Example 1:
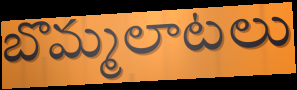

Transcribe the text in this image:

బొమ్మలాటలు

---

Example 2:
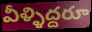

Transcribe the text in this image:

వీళ్ళిద్దరూ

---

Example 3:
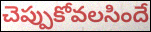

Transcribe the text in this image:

చెప్పుకోవలసిందే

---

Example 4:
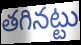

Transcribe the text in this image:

తగినట్టు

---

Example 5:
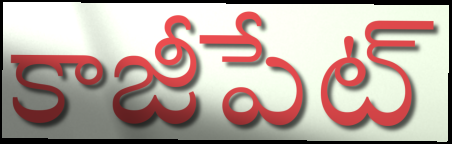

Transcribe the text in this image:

కాజీపేట్